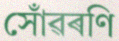
সোঁৱৰণি